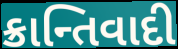
ક્રાન્તિવાદી